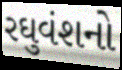
રઘુવંશનો